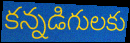
కన్నడిగులకు